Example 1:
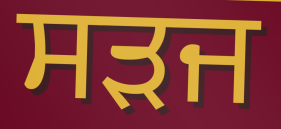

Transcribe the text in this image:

ਸੜਜ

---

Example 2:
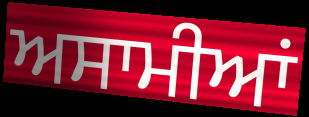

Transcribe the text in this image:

ਅਸਾਮੀਆਂ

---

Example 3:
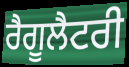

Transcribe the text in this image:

ਰੈਗੂਲੈਟਰੀ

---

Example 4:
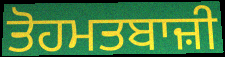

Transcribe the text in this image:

ਤੋਹਮਤਬਾਜ਼ੀ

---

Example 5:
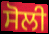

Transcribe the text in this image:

ਸੋਲੀ